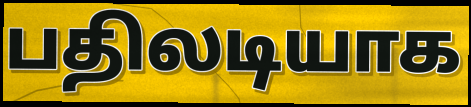
பதிலடியாக